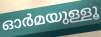
ഓർമയുള്ളൂ